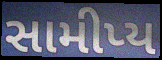
સામીપ્ય